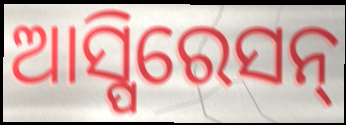
ଆସ୍ପିରେସନ୍